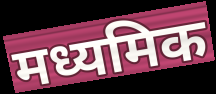
मध्यमिक